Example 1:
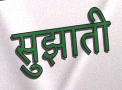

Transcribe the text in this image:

सुझाती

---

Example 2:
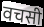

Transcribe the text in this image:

वचसी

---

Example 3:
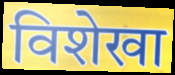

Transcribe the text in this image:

विशेखा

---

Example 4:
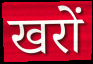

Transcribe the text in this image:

खरों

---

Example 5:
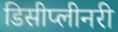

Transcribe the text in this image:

डिसीप्लीनरी